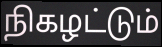
நிகழட்டும்